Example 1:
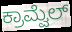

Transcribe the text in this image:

ಕ್ರಾಮ್ವೆಲ್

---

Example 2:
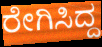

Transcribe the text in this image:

ರೇಗಿಸಿದ್ದ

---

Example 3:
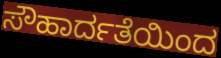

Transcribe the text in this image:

ಸೌಹಾರ್ದತೆಯಿಂದ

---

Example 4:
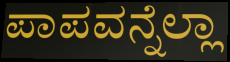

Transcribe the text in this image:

ಪಾಪವನ್ನೆಲ್ಲಾ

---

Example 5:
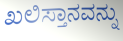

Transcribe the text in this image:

ಖಲಿಸ್ತಾನವನ್ನು